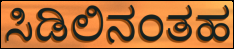
ಸಿಡಿಲಿನಂತಹ